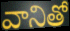
వానితో